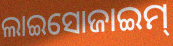
ଲାଇସୋଜାଇମ୍